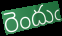
రెందుఁ